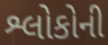
શ્લોકોની